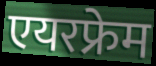
एयरफ्रेम